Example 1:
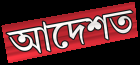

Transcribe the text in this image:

আদেশত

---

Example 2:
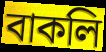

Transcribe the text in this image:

বাকলি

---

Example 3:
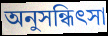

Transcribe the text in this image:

অনুসন্ধিৎসা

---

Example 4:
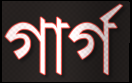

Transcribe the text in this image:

গাৰ্গ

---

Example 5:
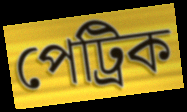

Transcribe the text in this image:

পেট্ৰিক